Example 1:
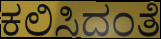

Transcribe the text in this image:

ಕಲಿಸಿದಂತೆ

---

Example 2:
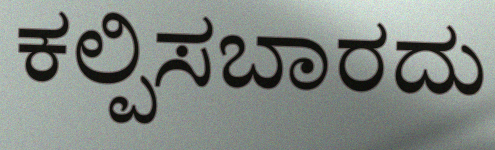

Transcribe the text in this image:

ಕಲ್ಪಿಸಬಾರದು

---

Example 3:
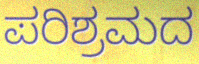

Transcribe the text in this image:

ಪರಿಶ್ರಮದ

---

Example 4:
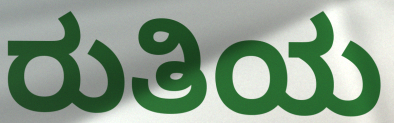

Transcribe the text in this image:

ರುತಿಯ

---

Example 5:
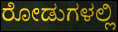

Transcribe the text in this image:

ರೋಡುಗಳಲ್ಲಿ